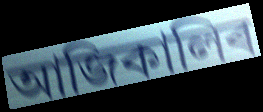
আজিকালিৰ